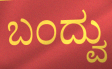
ಬಂದ್ವು